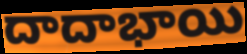
దాదాభాయి